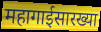
महागाईसारख्या